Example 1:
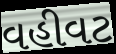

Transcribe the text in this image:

વહીવટ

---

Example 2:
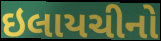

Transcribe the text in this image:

ઇલાયચીનો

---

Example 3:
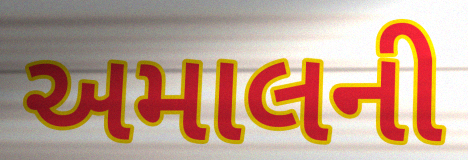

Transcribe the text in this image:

અમાલની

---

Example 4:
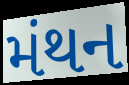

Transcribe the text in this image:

મંથન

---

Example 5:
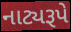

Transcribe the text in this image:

નાટ્યરૂપે